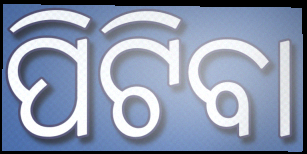
ପିଟିବା